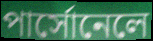
পার্সোনেলে